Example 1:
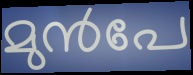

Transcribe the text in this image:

മുൻപേ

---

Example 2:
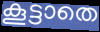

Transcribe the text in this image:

കൂട്ടാതെ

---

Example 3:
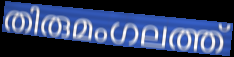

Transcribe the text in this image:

തിരുമംഗലത്ത്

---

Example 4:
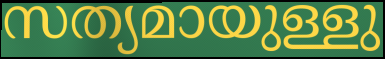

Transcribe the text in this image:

സത്യമായുള്ളു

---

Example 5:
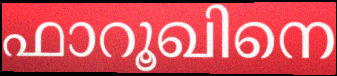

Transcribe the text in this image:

ഫാറൂഖിനെ